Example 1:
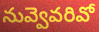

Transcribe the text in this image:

నువ్వెవరివో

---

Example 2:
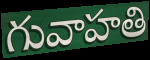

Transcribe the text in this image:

గువాహతి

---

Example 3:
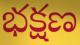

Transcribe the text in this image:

భక్షణ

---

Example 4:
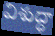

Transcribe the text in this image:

విశుద్ధా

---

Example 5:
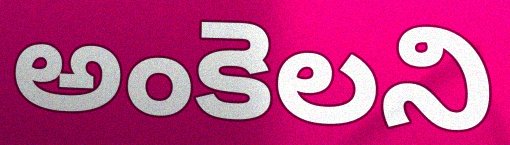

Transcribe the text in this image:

అంకెలని